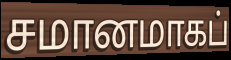
சமானமாகப்